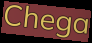
Chega